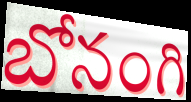
బోనంగి